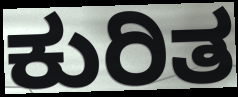
ಕುರಿತ